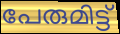
പേരുമിട്ട്